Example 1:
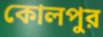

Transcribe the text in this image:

কোলপুর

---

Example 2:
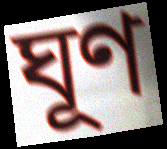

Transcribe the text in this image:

ঘূণ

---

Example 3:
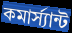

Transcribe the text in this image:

কমার্স্যান্ট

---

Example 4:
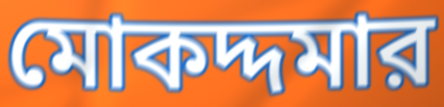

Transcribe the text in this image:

মোকদ্দমার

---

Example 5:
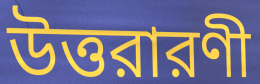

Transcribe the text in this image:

উত্তরারণী